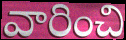
వారించి